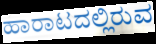
ಹಾರಾಟದಲ್ಲಿರುವ